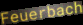
Feuerbach